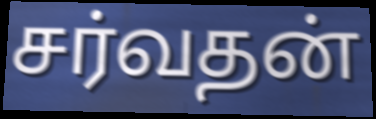
சர்வதன்